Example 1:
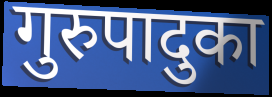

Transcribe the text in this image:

गुरुपादुका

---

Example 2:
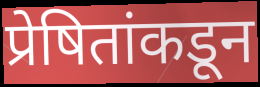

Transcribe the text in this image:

प्रेषितांकडून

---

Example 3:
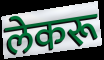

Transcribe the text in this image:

लेकरू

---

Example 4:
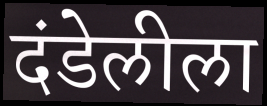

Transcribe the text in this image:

दंडेलीला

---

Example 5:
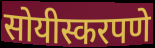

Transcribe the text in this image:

सोयीस्करपणे